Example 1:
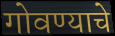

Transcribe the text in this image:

गोवण्याचे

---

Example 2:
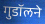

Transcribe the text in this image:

गुडॉलने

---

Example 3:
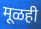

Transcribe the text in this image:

मूळही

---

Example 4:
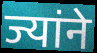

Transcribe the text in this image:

ज्यांने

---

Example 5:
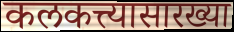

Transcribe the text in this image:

कलकत्त्यासारख्या